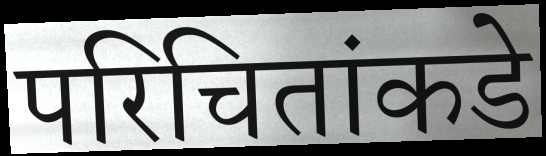
परिचितांकडे